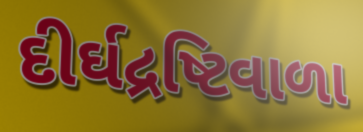
દીર્ઘદ્રષ્ટિવાળા